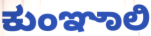
ಕುಂಞಾಲಿ